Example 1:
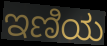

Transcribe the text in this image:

ಇಣಿಯ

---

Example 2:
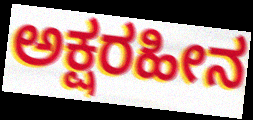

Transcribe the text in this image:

ಅಕ್ಷರಹೀನ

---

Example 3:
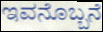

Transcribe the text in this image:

ಇವನೊಬ್ಬನೆ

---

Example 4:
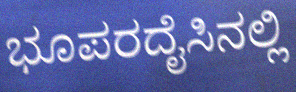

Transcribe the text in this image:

ಭೂಪರದೈಸಿನಲ್ಲಿ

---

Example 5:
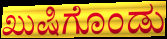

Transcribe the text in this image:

ಖುಷಿಗೊಂಡು